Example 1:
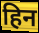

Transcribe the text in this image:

हिन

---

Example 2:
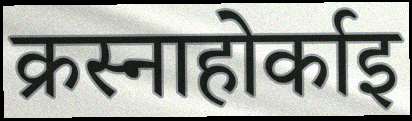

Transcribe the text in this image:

क्रस्नाहोर्काइ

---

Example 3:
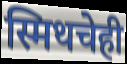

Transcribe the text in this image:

स्मिथचेही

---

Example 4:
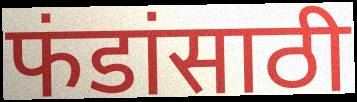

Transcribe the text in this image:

फंडांसाठी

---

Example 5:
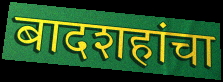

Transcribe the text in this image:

बादशहांचा